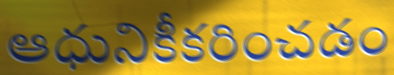
ఆధునికీకరించడం